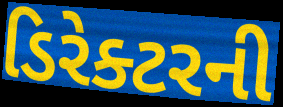
ડિરેક્ટરની